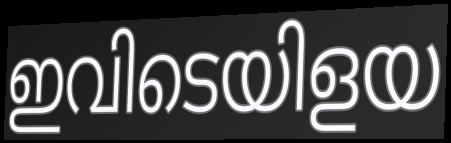
ഇവിടെയിളയ